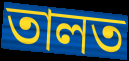
তালত